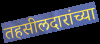
तहसीलदारांच्या